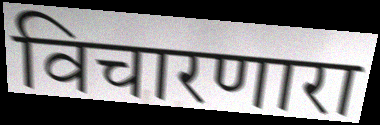
विचारणारा